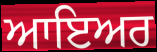
ਆਇਅਰ